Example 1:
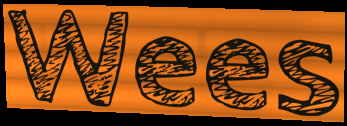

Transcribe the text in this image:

Wees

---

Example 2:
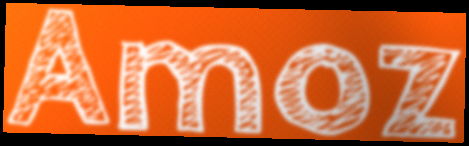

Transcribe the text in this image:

Amoz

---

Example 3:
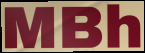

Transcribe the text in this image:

MBh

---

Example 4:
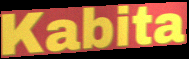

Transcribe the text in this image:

Kabita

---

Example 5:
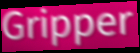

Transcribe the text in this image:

Gripper